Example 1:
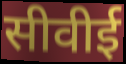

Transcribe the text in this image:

सीवीई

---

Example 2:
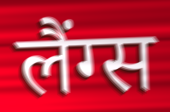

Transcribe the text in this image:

लैंग्स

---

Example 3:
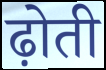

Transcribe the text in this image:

ढ़ोती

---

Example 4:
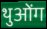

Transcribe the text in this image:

थुओंग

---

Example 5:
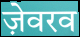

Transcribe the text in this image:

ज़ेवरव